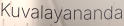
Kuvalayananda